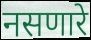
नसणारे